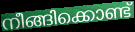
നീങ്ങിക്കൊണ്ട്